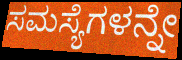
ಸಮಸ್ಯೆಗಳನ್ನೇ